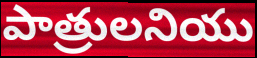
పాత్రులనియు